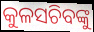
କୁଳସଚିବଙ୍କୁ